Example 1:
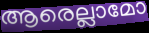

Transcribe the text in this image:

ആരെല്ലാമോ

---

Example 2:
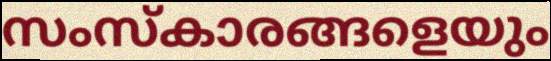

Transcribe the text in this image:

സംസ്കാരങ്ങളെയും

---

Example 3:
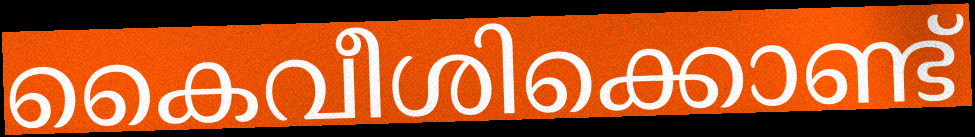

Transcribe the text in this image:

കൈവീശിക്കൊണ്ട്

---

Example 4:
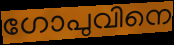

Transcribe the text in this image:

ഗോപുവിനെ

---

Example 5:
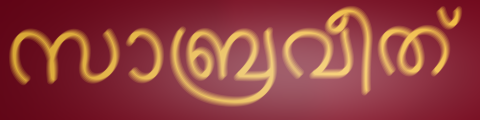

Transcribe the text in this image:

സാബ്രവീത്